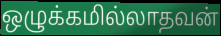
ஒழுக்கமில்லாதவன்